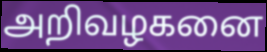
அறிவழகனை